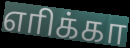
எரிக்கா